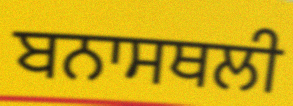
ਬਨਾਸਥਲੀ